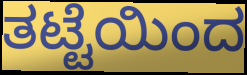
ತಟ್ಟೆಯಿಂದ